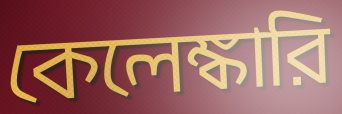
কেলেঙ্কারি